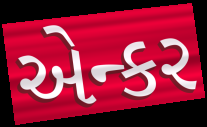
એન્કર